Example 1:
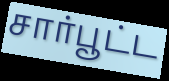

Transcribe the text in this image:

சார்பூட்ட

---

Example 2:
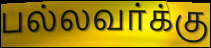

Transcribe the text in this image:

பல்லவர்க்கு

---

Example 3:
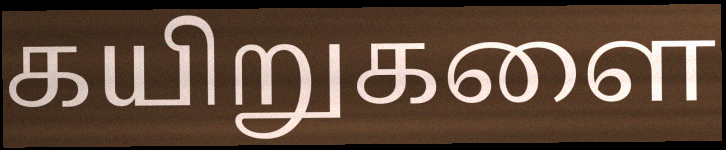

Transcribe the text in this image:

கயிறுகளை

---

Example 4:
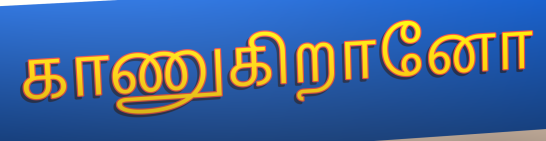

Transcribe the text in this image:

காணுகிறானோ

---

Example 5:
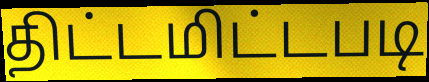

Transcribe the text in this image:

திட்டமிட்டபடி